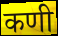
कणी